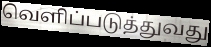
வெளிப்படுத்துவது